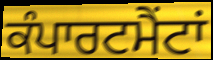
ਕੰਪਾਰਟਮੈਂਟਾਂ